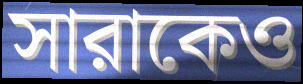
সারাকেও